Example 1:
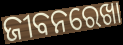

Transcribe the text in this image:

ଜୀବନରେଖା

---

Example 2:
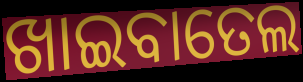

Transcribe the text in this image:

ଖାଇବାତେଲ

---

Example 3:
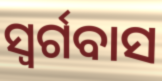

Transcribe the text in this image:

ସ୍ଵର୍ଗବାସ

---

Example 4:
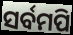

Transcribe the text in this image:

ସର୍ବମପି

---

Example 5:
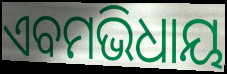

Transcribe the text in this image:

ଏବମଭିଧାୟ